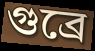
গুব্রে